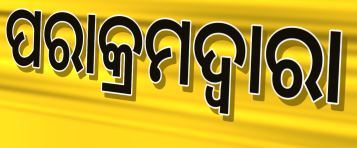
ପରାକ୍ରମଦ୍ୱାରା